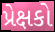
પ્રેક્ષકો